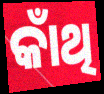
କାଁଥି